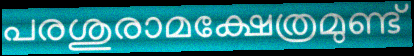
പരശുരാമക്ഷേത്രമുണ്ട്